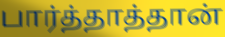
பார்த்தாத்தான்